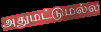
அதுமட்டுமல்ல